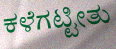
ಕಳೆಗಟ್ಟೀತು